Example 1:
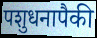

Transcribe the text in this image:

पशुधनापैकी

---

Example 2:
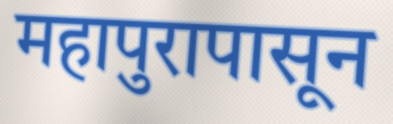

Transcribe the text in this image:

महापुरापासून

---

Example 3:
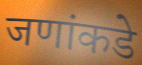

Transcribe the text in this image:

जणांकडे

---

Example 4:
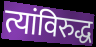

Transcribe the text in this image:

त्यांविरुद्ध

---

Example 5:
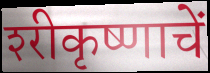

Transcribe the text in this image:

श्रीकृष्णाचें